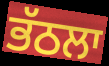
ਭੱਠਲਾ